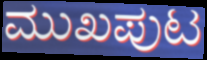
ಮುಖಪುಟ